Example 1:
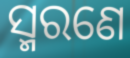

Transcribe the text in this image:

ସ୍ମରଣେ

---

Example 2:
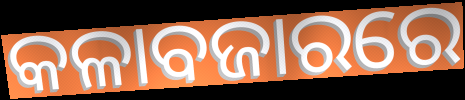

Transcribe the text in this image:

କଳାବଜାରରେ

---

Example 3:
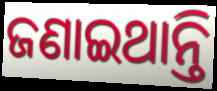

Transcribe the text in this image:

ଜଣାଇଥାନ୍ତି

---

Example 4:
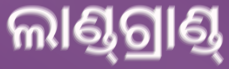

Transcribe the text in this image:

ଲାଣ୍ଡ୍‍ଗ୍ରାଣ୍ଡ୍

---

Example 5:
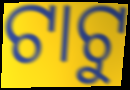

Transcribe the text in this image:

ଟାଟୁ